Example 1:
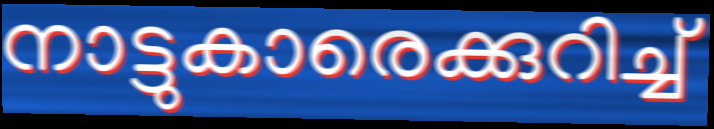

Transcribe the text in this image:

നാട്ടുകാരെക്കുറിച്ച്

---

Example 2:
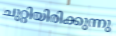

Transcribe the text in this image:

ചുറ്റിയിരിക്കുന്നു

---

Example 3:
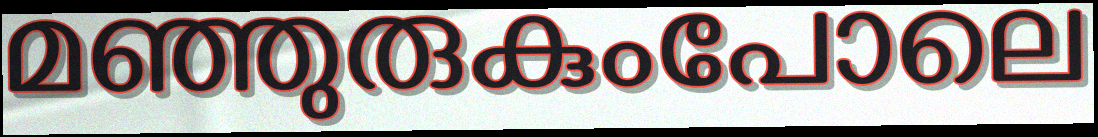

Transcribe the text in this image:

മഞ്ഞുരുകുംപോലെ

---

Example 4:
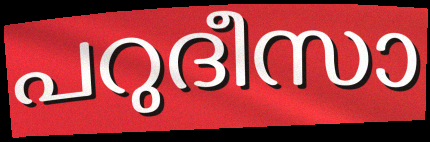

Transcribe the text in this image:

പറുദീസാ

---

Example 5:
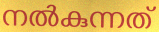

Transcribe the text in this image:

നൽകുന്നത്